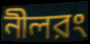
নীলরং